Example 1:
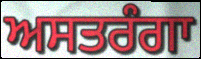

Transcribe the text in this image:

ਅਸਤਰੰਗਾ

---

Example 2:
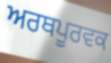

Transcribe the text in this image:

ਅਰਥਪੂਰਵਕ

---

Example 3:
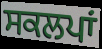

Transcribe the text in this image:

ਸਕਲਪਾਂ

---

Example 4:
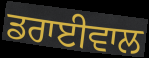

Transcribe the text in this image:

ਡਰਾਈਵਾਲ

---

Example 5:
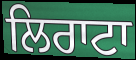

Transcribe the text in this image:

ਲਿਰਾਟਾ